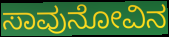
ಸಾವುನೋವಿನ